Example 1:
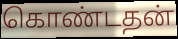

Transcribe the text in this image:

கொண்டதன்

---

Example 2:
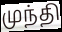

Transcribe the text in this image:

முந்தி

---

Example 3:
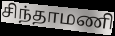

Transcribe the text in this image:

சிந்தாமணி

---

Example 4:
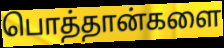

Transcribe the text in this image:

பொத்தான்களை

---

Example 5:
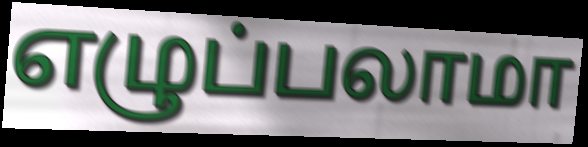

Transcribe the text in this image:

எழுப்பலாமா